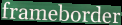
frameborder